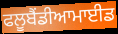
ਫਲੂਬੈਂਡੀਆਮਾਈਡ